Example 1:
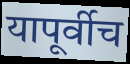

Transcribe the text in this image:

यापूर्वीच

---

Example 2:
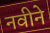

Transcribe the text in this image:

नवीने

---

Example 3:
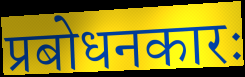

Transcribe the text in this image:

प्रबोधनकारः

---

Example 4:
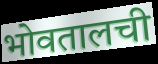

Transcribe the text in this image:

भोवतालची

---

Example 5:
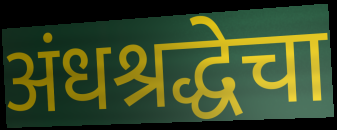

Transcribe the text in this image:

अंधश्रद्धेचा